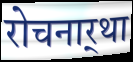
रोचनार्था